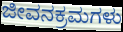
ಜೀವನಕ್ರಮಗಳು